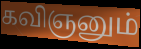
கவிஞனும்